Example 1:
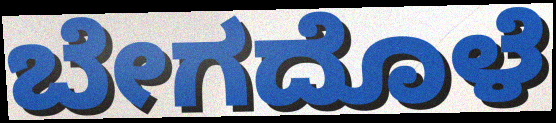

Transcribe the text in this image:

ಬೇಗದೊಳೆ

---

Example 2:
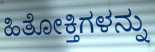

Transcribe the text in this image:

ಹಿತೋಕ್ತಿಗಳನ್ನು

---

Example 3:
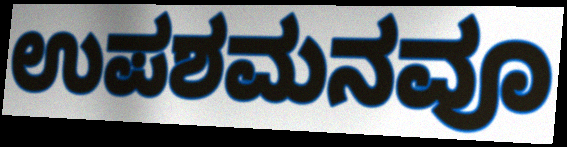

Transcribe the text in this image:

ಉಪಶಮನವೂ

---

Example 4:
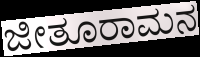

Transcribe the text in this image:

ಜೀತೂರಾಮನ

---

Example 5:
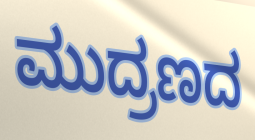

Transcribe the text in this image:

ಮುದ್ರಣದ